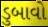
ડુબાવો